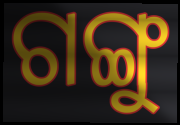
ଗଙ୍ଗୁ